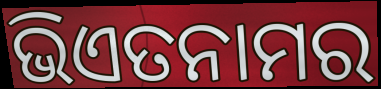
ଭିଏତନାମର